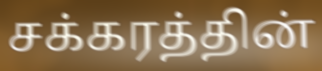
சக்கரத்தின்